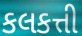
કલકત્તી